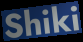
Shiki